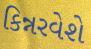
કિન્નરવેશે